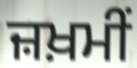
ਜ਼ਖ਼ਮੀਂ